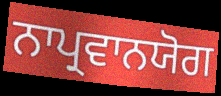
ਨਾਪ੍ਰਵਾਨਯੋਗ